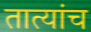
तात्यांच